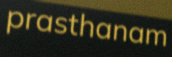
prasthanam